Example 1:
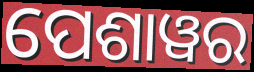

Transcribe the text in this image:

ପେଶାୱର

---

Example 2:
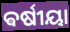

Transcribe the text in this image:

ଵର୍ଷୀୟା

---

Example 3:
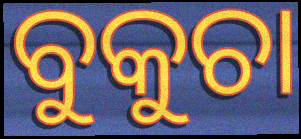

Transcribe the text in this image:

ବୁକୁଚା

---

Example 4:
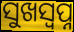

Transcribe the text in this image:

ସୁଖସ୍ୱପ୍ନ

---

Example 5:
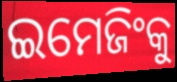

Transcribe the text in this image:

ଇମେଜିଂକୁ